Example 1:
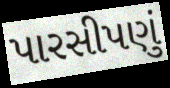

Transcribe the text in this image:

પારસીપણું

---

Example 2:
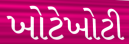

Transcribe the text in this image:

ખોટેખોટી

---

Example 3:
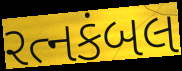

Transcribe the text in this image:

રત્નકંબલ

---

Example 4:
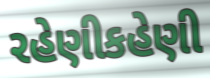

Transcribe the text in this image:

રહેણીકહેણી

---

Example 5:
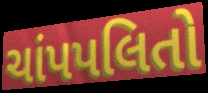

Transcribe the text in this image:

ચાંપપલિતો